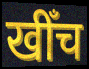
खीँच